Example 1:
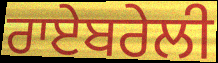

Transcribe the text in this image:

ਰਾਏਬਰੇਲੀ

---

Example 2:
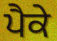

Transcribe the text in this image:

ਪੈਕੇ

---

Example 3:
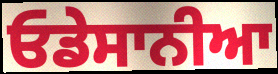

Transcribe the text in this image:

ਓਡੇਸਾਨੀਆ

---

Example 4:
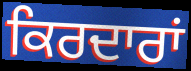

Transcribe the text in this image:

ਕਿਰਦਾਰਾਂ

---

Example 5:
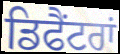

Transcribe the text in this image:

ਡਿਫੈਂਟਰਾਂ